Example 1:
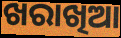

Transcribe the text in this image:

ଖରାଖିଆ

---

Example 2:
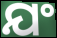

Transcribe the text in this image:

ଯଂ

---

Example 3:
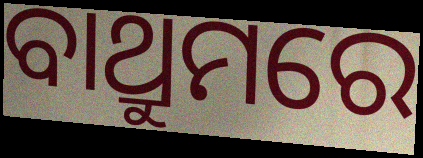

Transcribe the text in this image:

ବାଥ୍ରୁମରେ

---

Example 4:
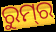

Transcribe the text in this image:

ରୁମ୍‌ର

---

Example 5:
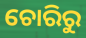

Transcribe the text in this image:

ଚୋରିରୁ